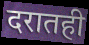
दरातही